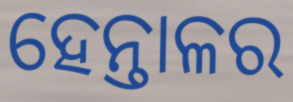
ହେନ୍ତାଳର